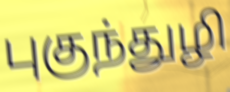
புகுந்துழி